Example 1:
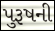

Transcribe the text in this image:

પુરૂષની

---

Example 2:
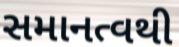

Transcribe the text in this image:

સમાનત્વથી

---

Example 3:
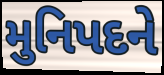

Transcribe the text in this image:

મુનિપદને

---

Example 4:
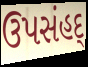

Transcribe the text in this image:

ઉપસંહદ્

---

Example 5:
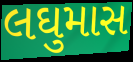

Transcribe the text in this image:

લઘુમાસ